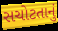
સચોટતાનું